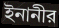
ইনানীর